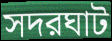
সদরঘাট